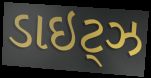
ડાઇટ્ઝ